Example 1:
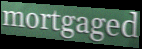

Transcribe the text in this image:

mortgaged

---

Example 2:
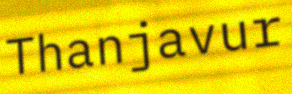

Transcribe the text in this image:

Thanjavur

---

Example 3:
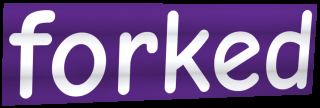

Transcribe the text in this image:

forked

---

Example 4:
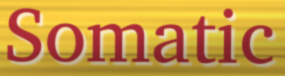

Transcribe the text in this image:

Somatic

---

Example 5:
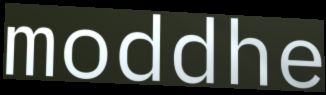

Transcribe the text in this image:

moddhe